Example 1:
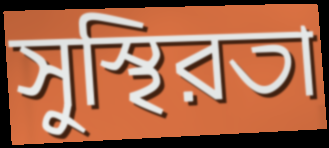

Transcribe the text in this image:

সুস্থিরতা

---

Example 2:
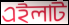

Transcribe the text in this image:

এইলাট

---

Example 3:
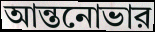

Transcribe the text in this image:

আন্তনোভার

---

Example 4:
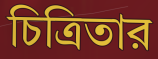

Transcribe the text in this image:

চিত্রিতার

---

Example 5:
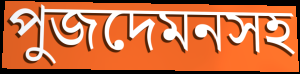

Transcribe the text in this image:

পুজদেমনসহ